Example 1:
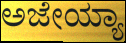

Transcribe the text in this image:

ಅಜೇಯ್ಯಾ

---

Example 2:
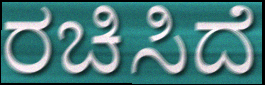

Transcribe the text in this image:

ರಚಿಸಿದೆ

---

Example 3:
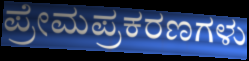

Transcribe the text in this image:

ಪ್ರೇಮಪ್ರಕರಣಗಳು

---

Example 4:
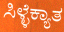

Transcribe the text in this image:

ಸಿಳ್ಳೆಕ್ಯಾತ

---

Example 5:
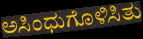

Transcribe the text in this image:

ಅಸಿಂಧುಗೊಳಿಸಿತು